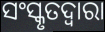
ସଂସ୍କୃତଦ୍ୱାରା